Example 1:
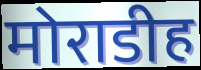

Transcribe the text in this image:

मोराडीह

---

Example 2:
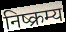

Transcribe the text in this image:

निष्क्रम्य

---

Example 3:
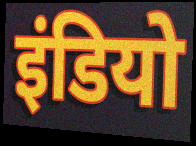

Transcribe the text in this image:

इंडियो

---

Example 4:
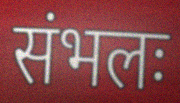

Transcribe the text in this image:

संभलः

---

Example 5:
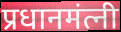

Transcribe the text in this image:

प्रधानमंत्नी